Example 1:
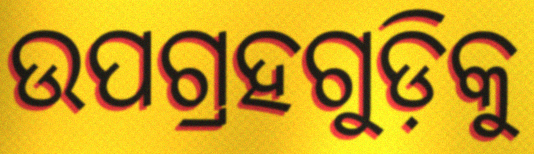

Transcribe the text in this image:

ଉପଗ୍ରହଗୁଡ଼ିକୁ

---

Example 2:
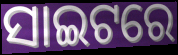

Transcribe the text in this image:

ସାଇଟରେ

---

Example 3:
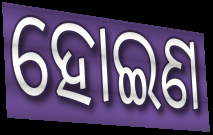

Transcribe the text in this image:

ହୋଇଣ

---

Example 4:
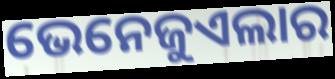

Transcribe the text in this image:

ଭେନେଜୁଏଲାର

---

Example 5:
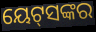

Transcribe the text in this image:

ୟେଟ୍‌ସଙ୍କର